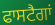
ਫਾਸਟੈਗਾਂ